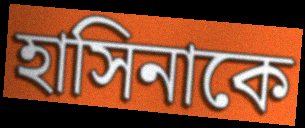
হাসিনাকে